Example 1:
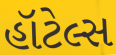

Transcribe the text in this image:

હૉટેલ્સ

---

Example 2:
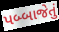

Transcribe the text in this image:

પબ્બાજેતું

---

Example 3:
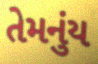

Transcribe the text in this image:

તેમનુંય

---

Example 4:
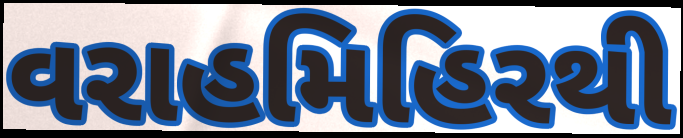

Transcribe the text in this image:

વરાહમિહિરથી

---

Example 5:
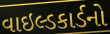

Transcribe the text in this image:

વાઇલ્ડકાર્ડનો